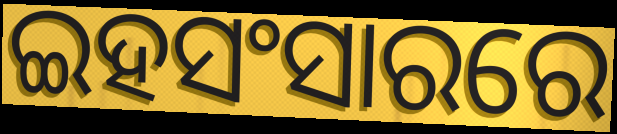
ଇହସଂସାରରେ